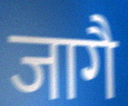
जागै